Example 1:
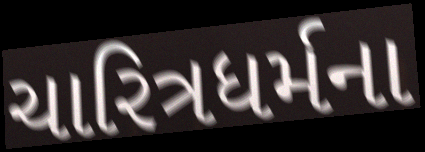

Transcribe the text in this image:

ચારિત્રધર્મના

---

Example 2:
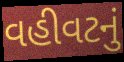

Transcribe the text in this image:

વહીવટનું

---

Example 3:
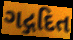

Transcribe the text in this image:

ગદ્ગદિત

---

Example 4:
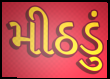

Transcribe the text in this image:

મીઠડું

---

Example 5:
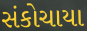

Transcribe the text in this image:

સંકોચાયા